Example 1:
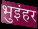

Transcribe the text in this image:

भुइंहर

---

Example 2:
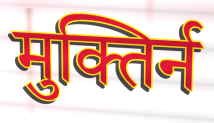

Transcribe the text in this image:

मुक्तिर्न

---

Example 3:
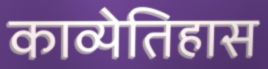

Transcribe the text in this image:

काव्येतिहास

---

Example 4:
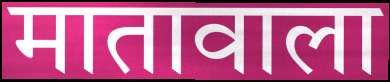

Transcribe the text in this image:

मातावाला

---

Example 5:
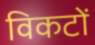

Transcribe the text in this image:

विकटों